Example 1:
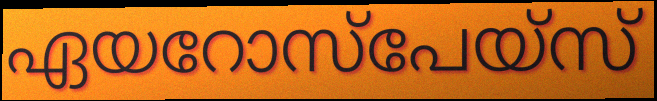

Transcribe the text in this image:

ഏയറോസ്പേയ്സ്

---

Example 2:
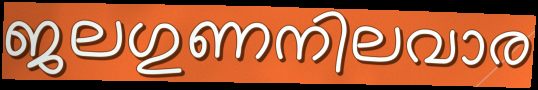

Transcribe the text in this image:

ജലഗുണനിലവാര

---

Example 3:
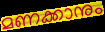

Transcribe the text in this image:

മണക്കാനും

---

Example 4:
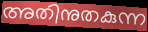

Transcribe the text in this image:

അതിനുതകുന്ന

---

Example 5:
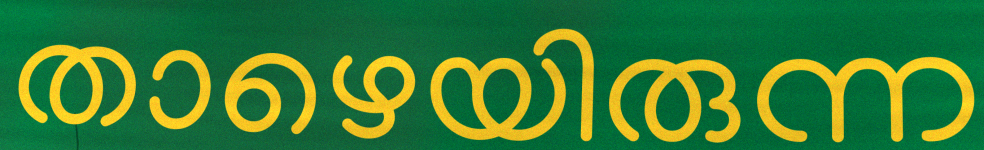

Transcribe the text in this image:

താഴെയിരുന്ന